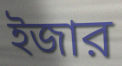
ইজার